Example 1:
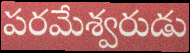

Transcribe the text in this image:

పరమేశ్వరుడు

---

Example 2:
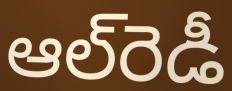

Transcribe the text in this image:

ఆల్‌రెడీ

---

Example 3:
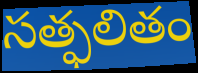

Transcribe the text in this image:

సత్ఫలితం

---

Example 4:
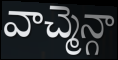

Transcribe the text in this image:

వాచ్మెన్గా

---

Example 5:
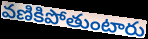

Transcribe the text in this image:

వణికిపోతుంటారు